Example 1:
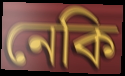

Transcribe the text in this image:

নেকি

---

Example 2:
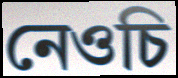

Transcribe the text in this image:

নেওচি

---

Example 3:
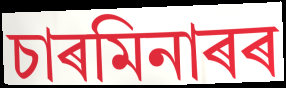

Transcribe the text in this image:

চাৰমিনাৰৰ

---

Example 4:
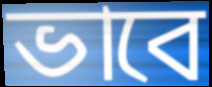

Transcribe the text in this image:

ভাবে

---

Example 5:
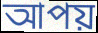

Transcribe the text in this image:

আপয়